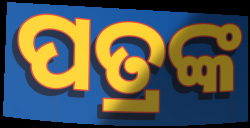
ପତ୍ରଙ୍କ